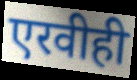
एरवीही